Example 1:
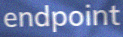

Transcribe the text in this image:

endpoint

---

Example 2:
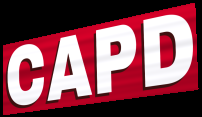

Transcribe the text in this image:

CAPD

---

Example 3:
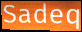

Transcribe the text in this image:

Sadeq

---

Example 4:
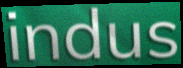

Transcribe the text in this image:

indus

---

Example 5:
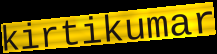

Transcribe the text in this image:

kirtikumar